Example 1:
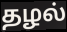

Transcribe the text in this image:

தழல்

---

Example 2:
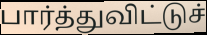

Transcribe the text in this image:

பார்த்துவிட்டுச்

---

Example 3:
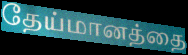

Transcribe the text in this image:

தேய்மானத்தை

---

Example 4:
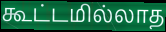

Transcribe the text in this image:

கூட்டமில்லாத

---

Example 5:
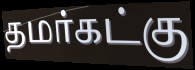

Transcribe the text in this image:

தமர்கட்கு